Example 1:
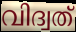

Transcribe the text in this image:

വിദ്വത്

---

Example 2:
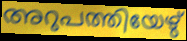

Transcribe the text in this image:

അറുപത്തിയേഴു്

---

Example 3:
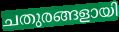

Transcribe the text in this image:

ചതുരങ്ങളായി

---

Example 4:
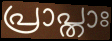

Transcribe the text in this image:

പ്രാപ്താഃ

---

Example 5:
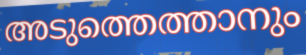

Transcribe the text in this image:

അടുത്തെത്താനും